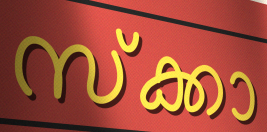
സ്ക്കാ